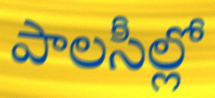
పాలసీల్లో